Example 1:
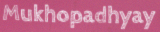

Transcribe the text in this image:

Mukhopadhyay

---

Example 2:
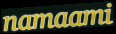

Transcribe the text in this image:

namaami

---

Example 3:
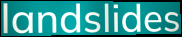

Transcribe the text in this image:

landslides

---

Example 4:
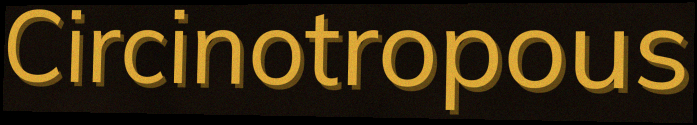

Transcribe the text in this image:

Circinotropous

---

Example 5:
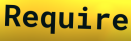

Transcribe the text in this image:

Require